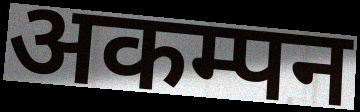
अकम्पन